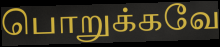
பொறுக்கவே